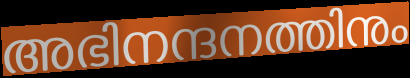
അഭിനന്ദനത്തിനും